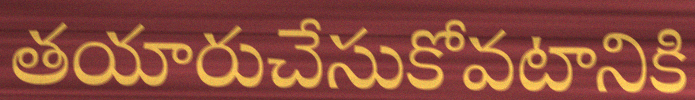
తయారుచేసుకోవటానికి